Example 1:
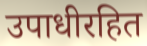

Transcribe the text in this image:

उपाधीरहित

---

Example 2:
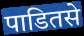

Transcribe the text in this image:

पाडितसे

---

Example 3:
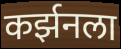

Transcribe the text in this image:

कर्झनला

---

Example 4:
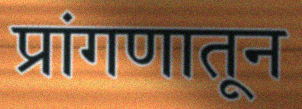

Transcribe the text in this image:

प्रांगणातून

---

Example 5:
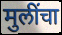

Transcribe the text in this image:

मुलींचा